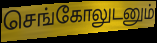
செங்கோலுடனும்